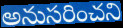
అనుసరించని